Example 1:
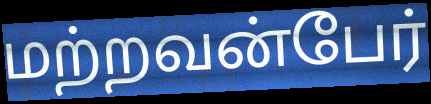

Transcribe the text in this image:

மற்றவன்பேர்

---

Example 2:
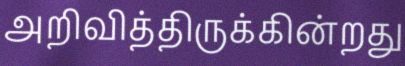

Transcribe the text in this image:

அறிவித்திருக்கின்றது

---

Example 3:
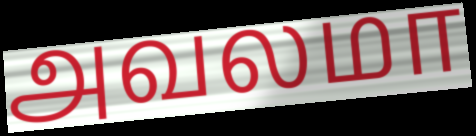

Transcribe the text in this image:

அவலமா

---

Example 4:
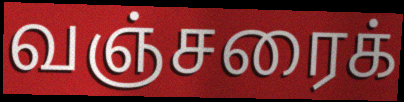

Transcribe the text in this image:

வஞ்சரைக்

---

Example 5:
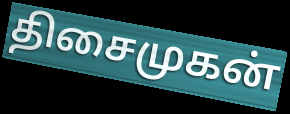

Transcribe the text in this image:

திசைமுகன்